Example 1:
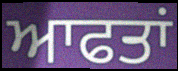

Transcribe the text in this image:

ਆਫਤਾਂ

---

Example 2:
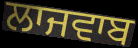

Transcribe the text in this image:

ਲਾਜਵਾਬ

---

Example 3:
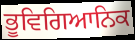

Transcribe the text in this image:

ਭੂਵਿਗਿਆਨਿਕ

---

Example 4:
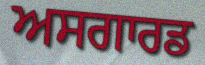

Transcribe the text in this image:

ਅਸਗਾਰਡ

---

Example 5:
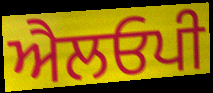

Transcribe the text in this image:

ਐਲਓਪੀ